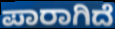
ಪಾರಾಗಿದೆ